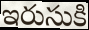
ఇరుసుకి